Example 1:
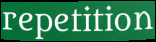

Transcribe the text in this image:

repetition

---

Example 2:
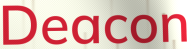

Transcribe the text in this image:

Deacon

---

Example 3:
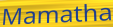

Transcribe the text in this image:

Mamatha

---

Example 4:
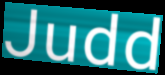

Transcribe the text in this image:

Judd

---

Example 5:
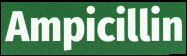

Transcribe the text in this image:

Ampicillin